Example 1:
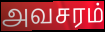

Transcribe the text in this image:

அவசரம்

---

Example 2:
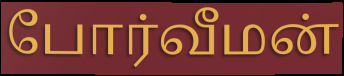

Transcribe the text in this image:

போர்வீமன்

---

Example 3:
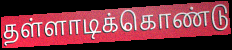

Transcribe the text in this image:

தள்ளாடிக்கொண்டு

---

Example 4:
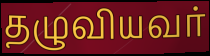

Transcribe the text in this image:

தழுவியவர்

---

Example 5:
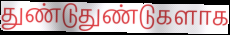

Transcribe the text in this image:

துண்டுதுண்டுகளாக